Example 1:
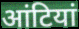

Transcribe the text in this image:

आंटियां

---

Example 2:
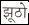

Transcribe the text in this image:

झूठो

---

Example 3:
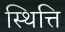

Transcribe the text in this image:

स्थित्ति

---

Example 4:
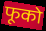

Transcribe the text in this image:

फूको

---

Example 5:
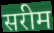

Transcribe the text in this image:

सरीम